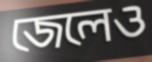
জেলেও